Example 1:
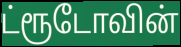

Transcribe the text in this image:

ட்ரூடோவின்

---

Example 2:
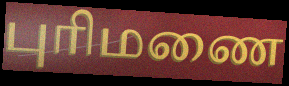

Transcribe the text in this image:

புரிமணை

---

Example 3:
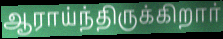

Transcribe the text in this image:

ஆராய்ந்திருக்கிறார்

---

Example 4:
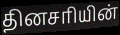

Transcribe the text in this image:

தினசரியின்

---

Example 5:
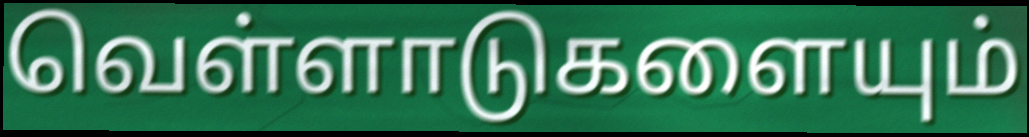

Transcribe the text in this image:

வெள்ளாடுகளையும்